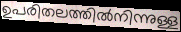
ഉപരിതലത്തിൽനിന്നുള്ള